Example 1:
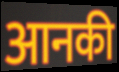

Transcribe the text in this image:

आनकी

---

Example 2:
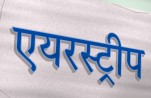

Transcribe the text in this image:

एयरस्ट्रीप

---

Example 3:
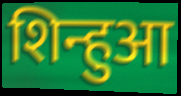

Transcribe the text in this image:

शिन्‍हुआ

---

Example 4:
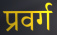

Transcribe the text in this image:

प्रवर्ग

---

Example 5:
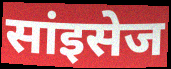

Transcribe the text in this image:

सांइसेज